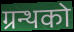
ग्रन्थको